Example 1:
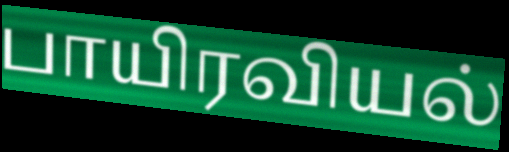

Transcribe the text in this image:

பாயிரவியல்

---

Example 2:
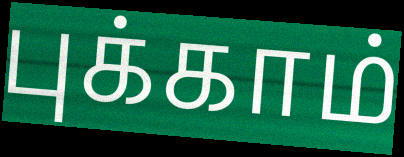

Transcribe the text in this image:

புக்காம்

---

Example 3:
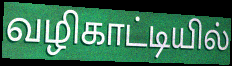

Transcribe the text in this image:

வழிகாட்டியில்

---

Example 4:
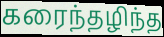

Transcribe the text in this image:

கரைந்தழிந்த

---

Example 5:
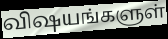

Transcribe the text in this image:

விஷயங்களுள்